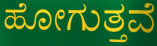
ಹೋಗುತ್ತವೆ